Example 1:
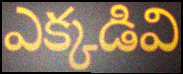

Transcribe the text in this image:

ఎక్కడివి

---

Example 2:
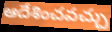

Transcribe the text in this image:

ఆదేశించవచ్చు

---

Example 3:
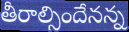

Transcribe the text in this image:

తీరాల్సిందేనన్న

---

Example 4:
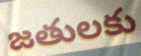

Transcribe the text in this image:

జతులకు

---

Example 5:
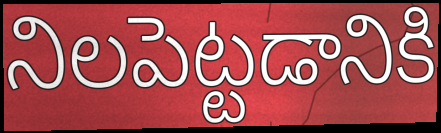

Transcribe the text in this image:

నిలపెట్టడానికి